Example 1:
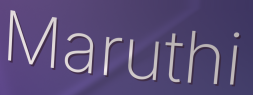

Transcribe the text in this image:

Maruthi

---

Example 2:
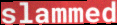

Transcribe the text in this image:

slammed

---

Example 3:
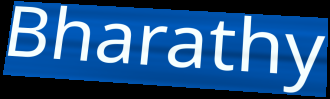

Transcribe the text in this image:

Bharathy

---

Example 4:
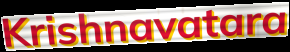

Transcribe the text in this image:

Krishnavatara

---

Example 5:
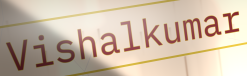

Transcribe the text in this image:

Vishalkumar